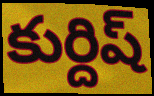
కుర్దిష్